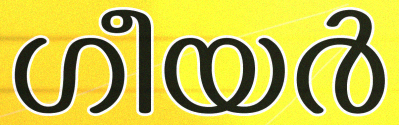
ഗീയർ